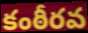
కంఠీరవ